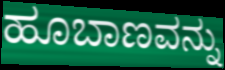
ಹೂಬಾಣವನ್ನು